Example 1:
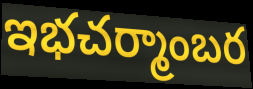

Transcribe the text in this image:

ఇభచర్మాంబర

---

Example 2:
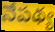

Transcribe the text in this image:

నేపథ్య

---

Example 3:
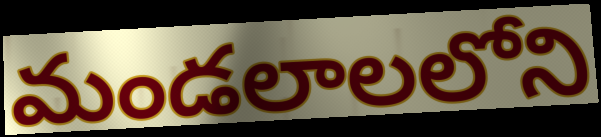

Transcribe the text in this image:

మండలాలలోని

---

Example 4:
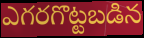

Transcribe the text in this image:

ఎగరగొట్టబడిన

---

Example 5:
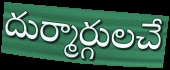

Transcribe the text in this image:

దుర్మార్గులచే